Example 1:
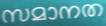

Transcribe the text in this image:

സമാനത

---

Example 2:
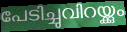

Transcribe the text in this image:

പേടിച്ചുവിറയ്ക്കും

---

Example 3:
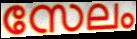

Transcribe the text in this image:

സേലം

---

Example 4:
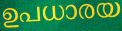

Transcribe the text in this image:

ഉപധാരയ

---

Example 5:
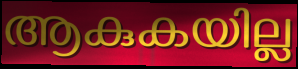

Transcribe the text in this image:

ആകുകയില്ല